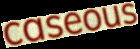
caseous